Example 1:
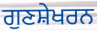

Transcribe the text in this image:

ਗੁਣਸ਼ੇਖਰਨ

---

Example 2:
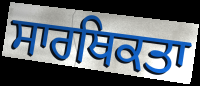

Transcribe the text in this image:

ਸਾਰਥਿਕਤਾ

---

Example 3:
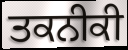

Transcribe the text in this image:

ਤਕਨੀਕੀ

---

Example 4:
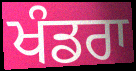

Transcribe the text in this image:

ਖੰਡਰਾ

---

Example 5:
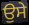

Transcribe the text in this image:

ਉਸੇ